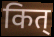
कित्